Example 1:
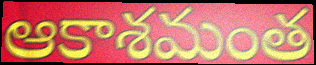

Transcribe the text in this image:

ఆకాశమంత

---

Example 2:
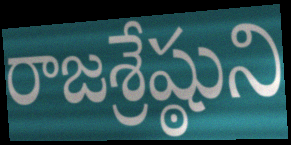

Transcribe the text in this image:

రాజశ్రేష్ఠుని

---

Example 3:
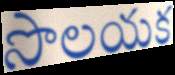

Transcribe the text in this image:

సొలయక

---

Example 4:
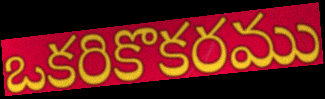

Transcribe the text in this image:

ఒకరికొకరము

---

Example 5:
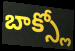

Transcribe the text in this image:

బాక్స్లో